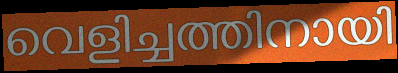
വെളിച്ചത്തിനായി